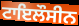
ਟਾਇਲੌਸੀਨ